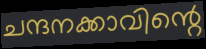
ചന്ദനക്കാവിന്റെ